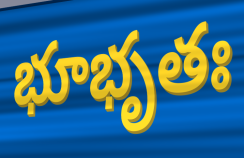
భూభృతః